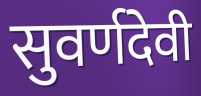
सुवर्णदेवी